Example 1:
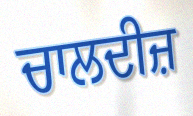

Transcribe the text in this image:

ਚਾਲਦੀਜ਼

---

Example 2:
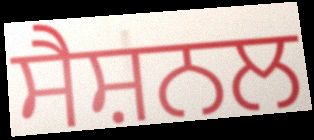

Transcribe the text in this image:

ਸੈਸ਼ਨਲ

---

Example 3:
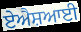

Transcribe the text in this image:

ਏਐਸ਼ਆਈ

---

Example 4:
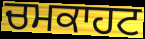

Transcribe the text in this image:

ਚਮਕਾਹਟ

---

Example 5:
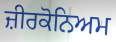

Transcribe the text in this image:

ਜ਼ੀਰਕੋਨਿਅਮ